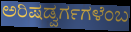
ಅರಿಷಡ್ವರ್ಗಗಳೆಂಬ